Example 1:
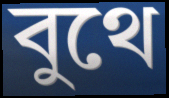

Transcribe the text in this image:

বুথে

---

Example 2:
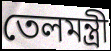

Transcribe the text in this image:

তেলমন্ত্রী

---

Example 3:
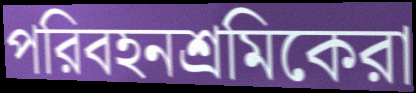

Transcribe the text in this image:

পরিবহনশ্রমিকেরা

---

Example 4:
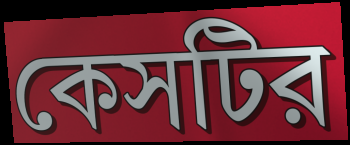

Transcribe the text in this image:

কেসটির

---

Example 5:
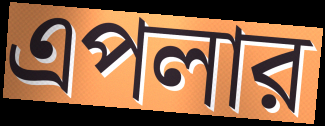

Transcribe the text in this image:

এপলার